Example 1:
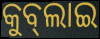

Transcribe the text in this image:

କୁବ୍‌ଲାଇ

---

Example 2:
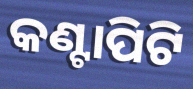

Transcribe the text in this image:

କଣ୍ଟାପିଟି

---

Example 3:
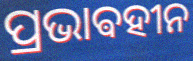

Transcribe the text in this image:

ପ୍ରଭାଵହୀନ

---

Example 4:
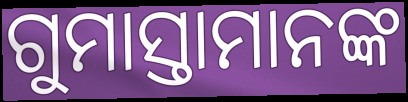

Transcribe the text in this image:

ଗୁମାସ୍ତାମାନଙ୍କ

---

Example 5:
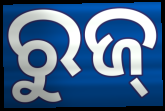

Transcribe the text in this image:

ରୁଜ୍